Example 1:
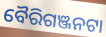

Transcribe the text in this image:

ବୈରିଗଞ୍ଜନଟା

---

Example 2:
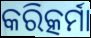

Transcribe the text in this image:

କରିତ୍କର୍ମା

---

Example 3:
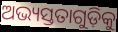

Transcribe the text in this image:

ଅଭ୍ୟସ୍ତତାଗୁଡ଼ିକୁ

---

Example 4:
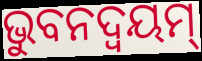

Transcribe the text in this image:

ଭୁବନଦ୍ଵୟମ୍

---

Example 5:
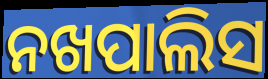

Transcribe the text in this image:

ନଖପାଲିସ